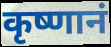
कृष्णानं